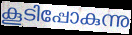
കൂടിപ്പോകുന്നു